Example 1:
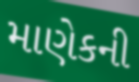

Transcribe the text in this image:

માણેકની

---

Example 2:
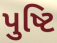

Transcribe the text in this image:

પુષ્ટિ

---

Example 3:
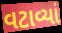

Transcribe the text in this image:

વટાવ્યાં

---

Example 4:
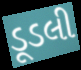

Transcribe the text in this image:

ડૂડલી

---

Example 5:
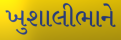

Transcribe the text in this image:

ખુશાલીભાને